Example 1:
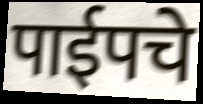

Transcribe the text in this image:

पाईपचे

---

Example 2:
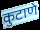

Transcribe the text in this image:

कुटाणे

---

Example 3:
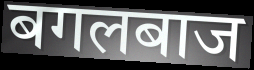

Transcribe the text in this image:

बगलबाज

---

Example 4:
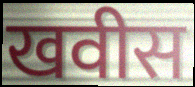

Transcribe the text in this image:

खवीस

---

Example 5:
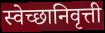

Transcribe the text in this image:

स्वेच्छानिवृत्ती